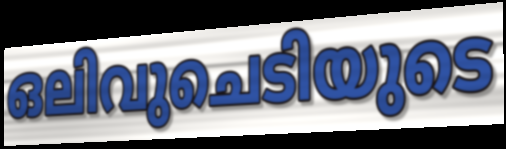
ഒലിവുചെടിയുടെ